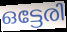
ഒട്ടേരി